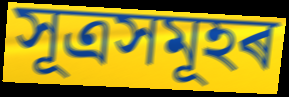
সূত্ৰসমূহৰ